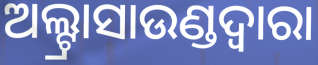
ଅଲ୍ଟ୍ରାସାଉଣ୍ଡଦ୍ୱାରା